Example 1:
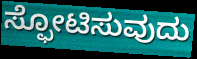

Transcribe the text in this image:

ಸ್ಫೋಟಿಸುವುದು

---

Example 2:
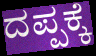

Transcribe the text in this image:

ದಪ್ಪಕ್ಕೆ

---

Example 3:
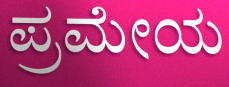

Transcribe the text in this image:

ಪ್ರಮೇಯ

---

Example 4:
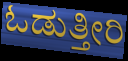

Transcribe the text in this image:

ಓಡುತ್ತೀರಿ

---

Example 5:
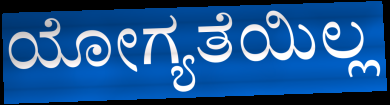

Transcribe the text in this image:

ಯೋಗ್ಯತೆಯಿಲ್ಲ